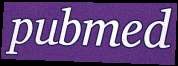
pubmed